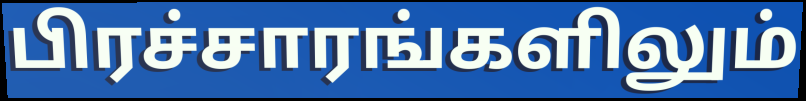
பிரச்சாரங்களிலும்